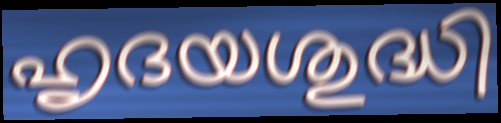
ഹൃദയശുദ്ധി